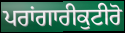
ਪਰਾਂਗਾਰੀਕੁਟੀਰੋ